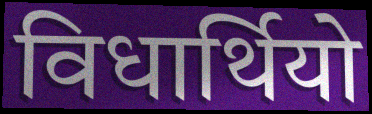
विधार्थियो